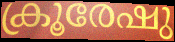
ക്രൂരേഷു